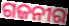
ଗଜନୀର